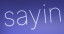
sayin